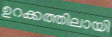
ഉറക്കത്തിലായി